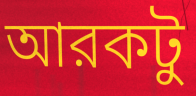
আরকটু